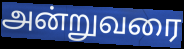
அன்றுவரை